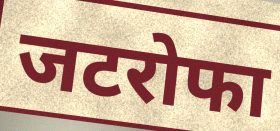
जटरोफा